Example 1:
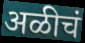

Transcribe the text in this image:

अळीचं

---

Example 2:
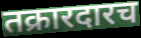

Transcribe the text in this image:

तक्रारदारच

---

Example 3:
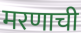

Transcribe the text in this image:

मरणाची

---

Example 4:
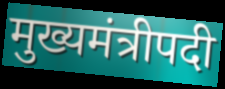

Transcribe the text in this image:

मुख्यमंत्रीपदी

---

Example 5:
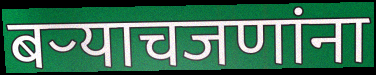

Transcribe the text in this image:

बऱ्याचजणांना